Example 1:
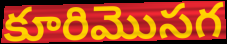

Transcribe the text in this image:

కూరిమొసగ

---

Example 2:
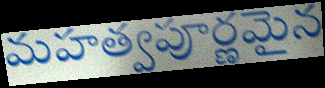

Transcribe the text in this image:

మహత్వపూర్ణమైన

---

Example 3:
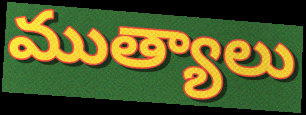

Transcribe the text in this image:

ముత్యాలు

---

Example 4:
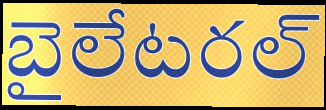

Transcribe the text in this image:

బైలేటరల్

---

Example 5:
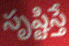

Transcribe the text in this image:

సృష్టిస్తే